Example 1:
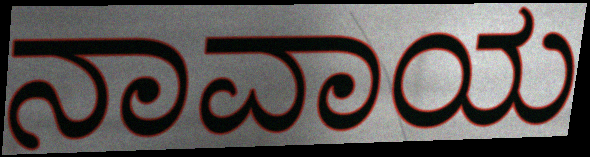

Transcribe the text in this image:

ನಾವಾಯ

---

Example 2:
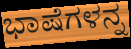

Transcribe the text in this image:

ಭಾಷೆಗಳನ್ನ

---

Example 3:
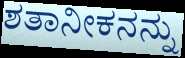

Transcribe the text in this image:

ಶತಾನೀಕನನ್ನು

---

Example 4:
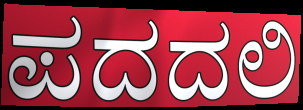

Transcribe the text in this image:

ಪದದಲಿ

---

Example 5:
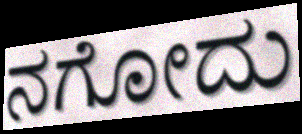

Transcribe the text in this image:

ನಗೋದು